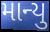
માન્યુ